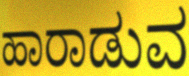
ಹಾರಾಡುವ